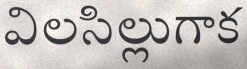
విలసిల్లుగాక